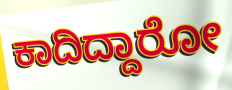
ಕಾದಿದ್ದಾರೋ